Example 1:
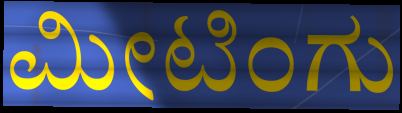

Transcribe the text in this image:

ಮೀಟಿಂಗು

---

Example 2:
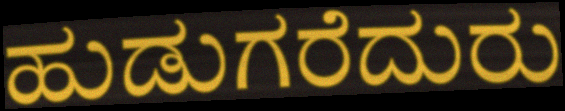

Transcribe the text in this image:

ಹುಡುಗರೆದುರು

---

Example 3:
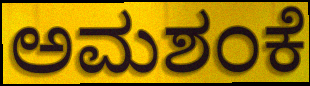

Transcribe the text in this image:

ಅಮಶಂಕೆ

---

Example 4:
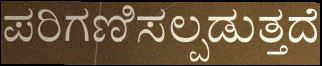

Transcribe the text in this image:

ಪರಿಗಣಿಸಲ್ಪಡುತ್ತದೆ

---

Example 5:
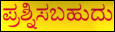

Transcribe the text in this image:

ಪ್ರಶ್ನಿಸಬಹುದು